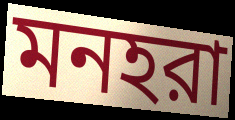
মনহরা